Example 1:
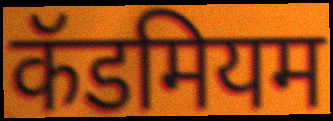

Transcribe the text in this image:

कॅडमियम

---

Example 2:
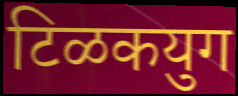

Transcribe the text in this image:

टिळकयुग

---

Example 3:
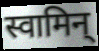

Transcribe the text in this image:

स्वामिन्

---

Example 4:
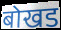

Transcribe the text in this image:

बोखड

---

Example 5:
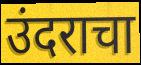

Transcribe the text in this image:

उंदराचा